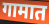
गामात